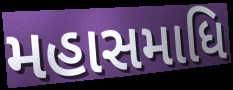
મહાસમાધિ